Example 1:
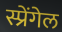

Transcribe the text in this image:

स्प्रेंगेल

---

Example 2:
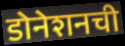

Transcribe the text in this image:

डोनेशनची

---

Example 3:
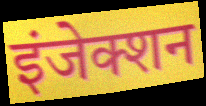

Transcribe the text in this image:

इंजेक्शन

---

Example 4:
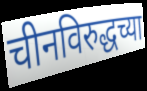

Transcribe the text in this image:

चीनविरुद्धच्या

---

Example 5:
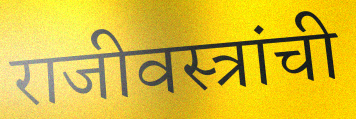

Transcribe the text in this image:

राजीवस्त्रांची